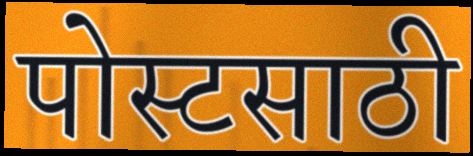
पोस्टसाठी